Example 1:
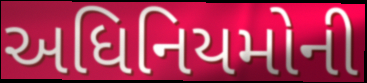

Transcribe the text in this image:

અધિનિયમોની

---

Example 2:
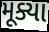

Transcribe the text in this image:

મૂક્યા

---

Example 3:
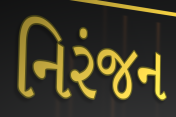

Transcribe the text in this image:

નિરંજન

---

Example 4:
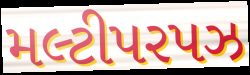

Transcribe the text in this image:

મલ્ટીપરપઝ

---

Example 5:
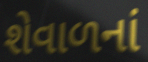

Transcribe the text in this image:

શેવાળનાં